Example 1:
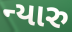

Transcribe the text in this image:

ન્યારુ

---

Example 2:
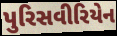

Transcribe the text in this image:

પુરિસવીરિયેન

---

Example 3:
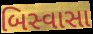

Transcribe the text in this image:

બિસ્વાસા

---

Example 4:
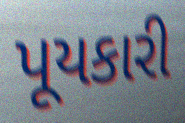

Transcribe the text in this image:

પૂયકારી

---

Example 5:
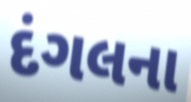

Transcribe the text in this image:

દંગલના